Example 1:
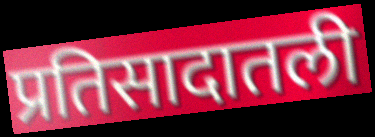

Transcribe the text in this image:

प्रतिसादातली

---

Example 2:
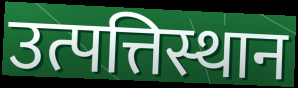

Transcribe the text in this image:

उत्पत्तिस्थान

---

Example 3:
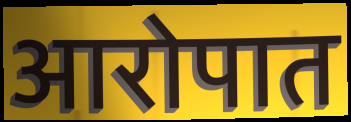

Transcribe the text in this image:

आरोपात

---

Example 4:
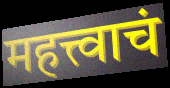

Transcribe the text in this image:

महत्त्वाचं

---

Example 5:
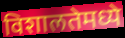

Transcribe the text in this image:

विशालतेमध्ये